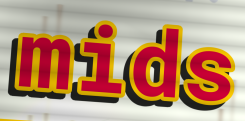
mids